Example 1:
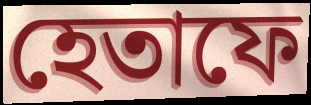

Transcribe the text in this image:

হেতাফে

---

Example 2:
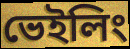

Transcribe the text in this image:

ভেইলিং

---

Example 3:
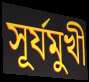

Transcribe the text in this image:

সূর্যমুখী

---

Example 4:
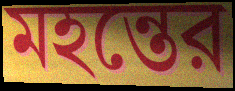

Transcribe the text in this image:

মহন্তের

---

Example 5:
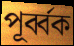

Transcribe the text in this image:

পূর্ব্বক